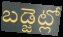
బడ్జెట్లో